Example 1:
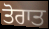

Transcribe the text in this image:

ਤੋਰਾਤ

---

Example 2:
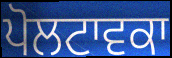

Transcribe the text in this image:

ਪੋਲਟਾਵਕਾ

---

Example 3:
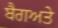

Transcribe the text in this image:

ਬੈਗਅਤੇ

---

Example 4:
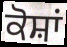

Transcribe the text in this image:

ਕੋਸ਼ਾਂ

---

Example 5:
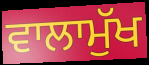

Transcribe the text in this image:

ਵਾਲਾਮੁੱਖ